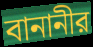
বানানীর